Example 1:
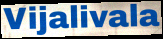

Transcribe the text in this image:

Vijalivala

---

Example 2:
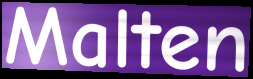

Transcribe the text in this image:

Malten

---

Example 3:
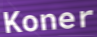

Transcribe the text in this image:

Koner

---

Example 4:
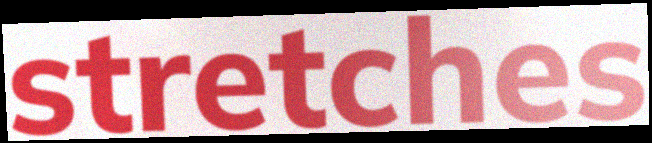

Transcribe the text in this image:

stretches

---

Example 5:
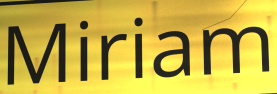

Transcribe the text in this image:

Miriam